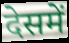
देसमें